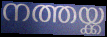
നത്തയ്ക്ക